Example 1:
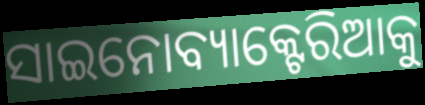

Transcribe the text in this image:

ସାଇନୋବ୍ୟାକ୍ଟେରିଆକୁ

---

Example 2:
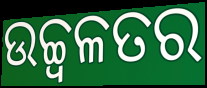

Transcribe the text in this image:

ଉଚ୍ଚ୍ୱଳତର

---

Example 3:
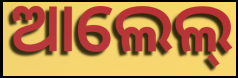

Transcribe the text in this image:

ଆଲେଲ୍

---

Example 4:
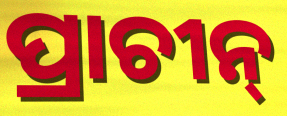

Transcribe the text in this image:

ପ୍ରାଚୀନ୍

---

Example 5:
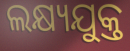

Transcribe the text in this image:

ଲକ୍ଷ୍ୟଯୁକ୍ତ